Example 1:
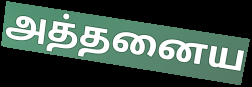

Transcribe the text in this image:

அத்தனைய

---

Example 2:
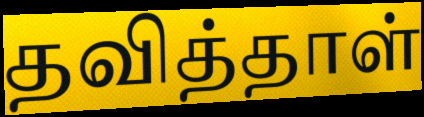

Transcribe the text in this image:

தவித்தாள்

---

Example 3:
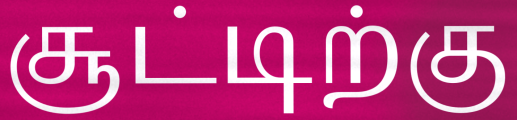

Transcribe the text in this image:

சூட்டிற்கு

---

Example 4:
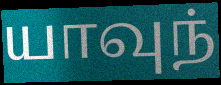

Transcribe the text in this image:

யாவுந்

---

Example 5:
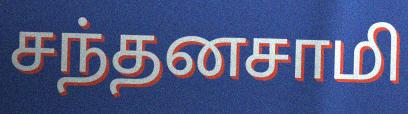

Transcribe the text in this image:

சந்தனசாமி